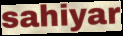
sahiyar